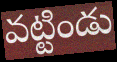
వట్టిండు